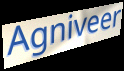
Agniveer